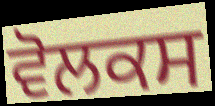
ਵੋਲਕਸ